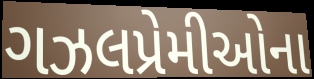
ગઝલપ્રેમીઓના